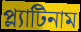
প্ল্যাটিনাম